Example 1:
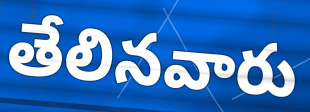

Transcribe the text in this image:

తేలినవారు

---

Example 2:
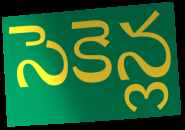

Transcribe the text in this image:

సెకెన్ల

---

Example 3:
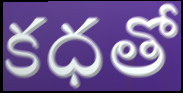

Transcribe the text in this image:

కధతో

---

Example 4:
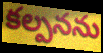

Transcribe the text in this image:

కల్పనను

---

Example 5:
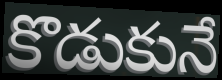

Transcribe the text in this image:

కొడుకునే